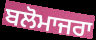
ਬਲੋਮਾਜਰਾ